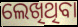
ଲେଖିଥିବା